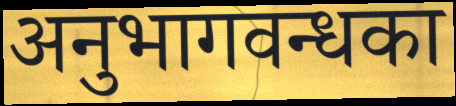
अनुभागवन्धका